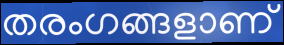
തരംഗങ്ങളാണ്